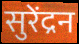
सुरेंद्रन